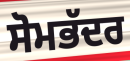
ਸੋਮਭੱਦਰ